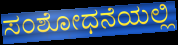
ಸಂಶೋಧನೆಯಲ್ಲಿ